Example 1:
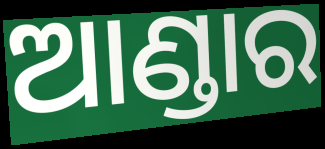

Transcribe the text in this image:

ଆଣ୍ଡାର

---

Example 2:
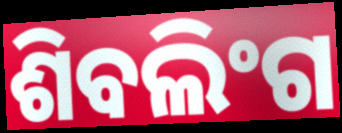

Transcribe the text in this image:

ଶିବଲିଂଗ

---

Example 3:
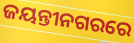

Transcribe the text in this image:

ଜୟନ୍ତୀନଗରରେ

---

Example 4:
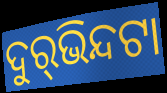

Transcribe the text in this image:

ଦୁର୍‌ଭିନ୍ଦଟା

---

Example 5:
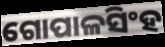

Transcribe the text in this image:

ଗୋପାଳସିଂହ